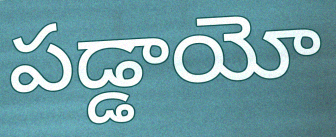
పడ్డాయో